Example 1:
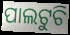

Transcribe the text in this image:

ପାଲଟୁଚି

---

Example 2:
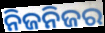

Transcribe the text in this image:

ନିଜନିଜର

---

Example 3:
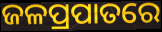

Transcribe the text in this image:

ଜଳପ୍ରପାତରେ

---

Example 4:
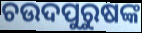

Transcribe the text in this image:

ଚଉଦପୁରୁଷଙ୍କ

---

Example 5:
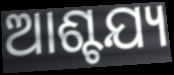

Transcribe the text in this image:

ଆଶ୍ଚଯ୍ୟ